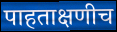
पाहताक्षणीच